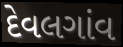
દેવલગાંવ